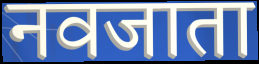
नवजाता